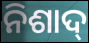
ନିଶାଦ୍